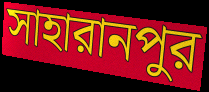
সাহারানপুর